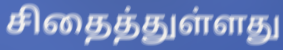
சிதைத்துள்ளது